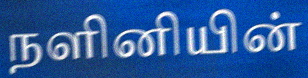
நளினியின்